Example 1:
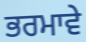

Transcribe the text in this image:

ਭਰਮਾਵੇ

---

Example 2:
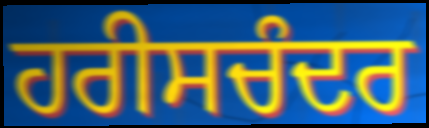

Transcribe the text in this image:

ਹਰੀਸਚੰਦਰ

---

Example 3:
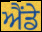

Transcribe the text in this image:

ਐਂਡੇ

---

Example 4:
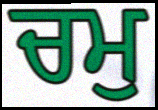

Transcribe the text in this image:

ਚਮੁ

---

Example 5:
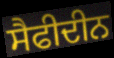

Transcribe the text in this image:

ਸੈਫੀਦੀਨ